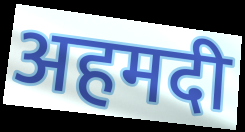
अहमदी